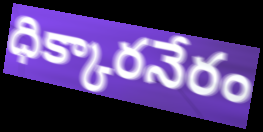
ధిక్కారనేరం